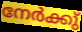
നേർക്കു്